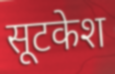
सूटकेश